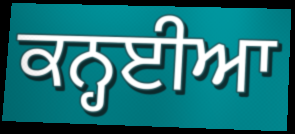
ਕਨ੍ਹਈਆ